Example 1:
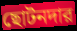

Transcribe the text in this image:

ছোটনদার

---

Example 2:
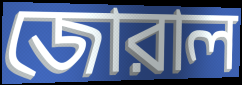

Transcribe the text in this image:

জোরাল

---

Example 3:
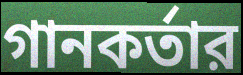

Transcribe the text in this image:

গানকর্তার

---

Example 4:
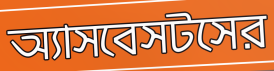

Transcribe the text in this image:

অ্যাসবেসটসের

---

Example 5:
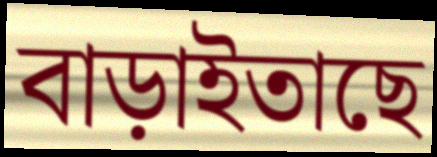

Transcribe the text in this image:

বাড়াইতাছে